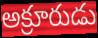
అక్రూరుడు